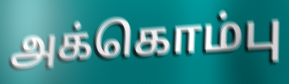
அக்கொம்பு